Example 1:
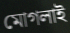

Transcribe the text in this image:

মোগলাই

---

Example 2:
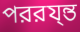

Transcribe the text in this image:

পররয্ন্ত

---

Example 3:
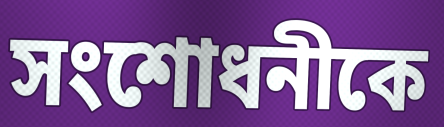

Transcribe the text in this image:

সংশোধনীকে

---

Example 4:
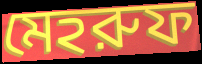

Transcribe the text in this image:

মেহরুফ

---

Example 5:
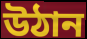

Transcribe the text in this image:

উঠান